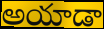
అయాడా